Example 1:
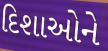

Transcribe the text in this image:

દિશાઓને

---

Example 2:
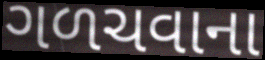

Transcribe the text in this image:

ગળચવાના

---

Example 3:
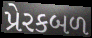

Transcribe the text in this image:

પ્રેરકબળ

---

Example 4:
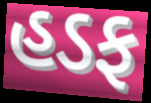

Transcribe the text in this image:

હડફ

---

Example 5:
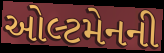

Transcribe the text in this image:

ઓલ્ટમેનની